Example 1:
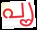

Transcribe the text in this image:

പൄ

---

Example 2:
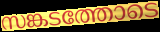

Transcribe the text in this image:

സങ്കടത്തോടെ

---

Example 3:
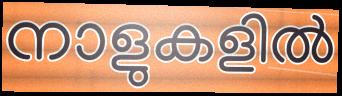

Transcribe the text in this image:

നാളുകളിൽ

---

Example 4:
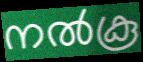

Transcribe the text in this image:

നൽകൂ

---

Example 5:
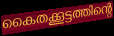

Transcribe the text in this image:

കൈതക്കൂട്ടത്തിന്റെ